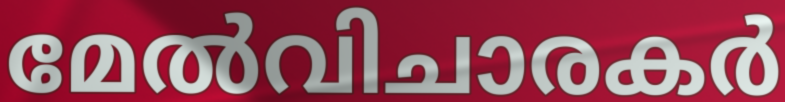
മേൽവിചാരകർ